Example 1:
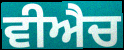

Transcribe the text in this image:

ਵੀਐਚ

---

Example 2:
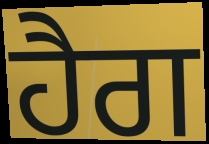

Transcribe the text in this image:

ਹੈਗ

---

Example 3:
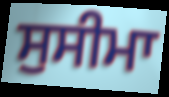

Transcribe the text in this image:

ਸੁਸੀਮਾ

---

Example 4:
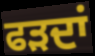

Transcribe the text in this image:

ਫੜਦਾਂ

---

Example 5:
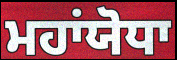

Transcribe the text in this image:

ਮਹਾਂਯੋਧਾ